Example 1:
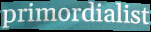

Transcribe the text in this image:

primordialist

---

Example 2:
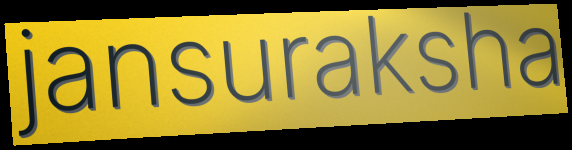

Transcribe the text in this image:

jansuraksha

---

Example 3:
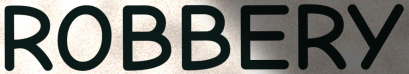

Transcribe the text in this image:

ROBBERY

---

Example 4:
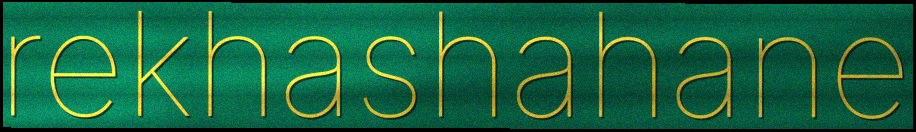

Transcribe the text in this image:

rekhashahane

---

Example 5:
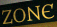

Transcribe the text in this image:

ZONE